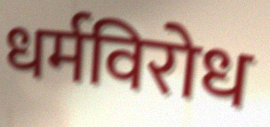
धर्मविरोध